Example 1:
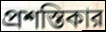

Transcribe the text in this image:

প্রশস্তিকার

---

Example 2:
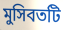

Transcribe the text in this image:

মুসিবতটি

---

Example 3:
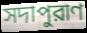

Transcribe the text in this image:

সদাপুরাণ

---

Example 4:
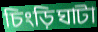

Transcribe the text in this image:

চিংড়িঘাটা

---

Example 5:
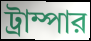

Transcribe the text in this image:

ট্রাম্পার